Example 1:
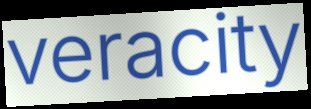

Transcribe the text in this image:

veracity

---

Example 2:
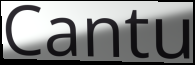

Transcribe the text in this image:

Cantu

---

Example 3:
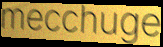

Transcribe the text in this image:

mecchuge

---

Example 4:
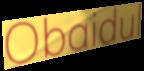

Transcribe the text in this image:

Obaidul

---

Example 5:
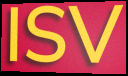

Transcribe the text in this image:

ISV